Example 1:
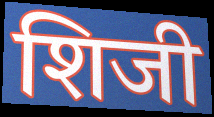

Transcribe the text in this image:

शिजी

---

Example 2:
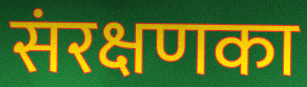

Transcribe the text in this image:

संरक्षणका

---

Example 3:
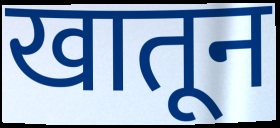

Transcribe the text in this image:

खातून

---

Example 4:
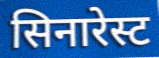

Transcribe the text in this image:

सिनारेस्ट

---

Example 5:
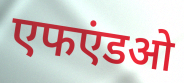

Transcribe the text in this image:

एफएंडओ